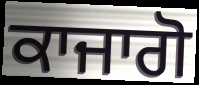
ਕਾਜਾਗੋ